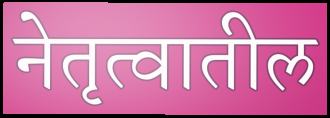
नेतृत्वातील